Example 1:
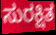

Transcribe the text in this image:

ಸುರಕ್ಷಿತ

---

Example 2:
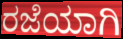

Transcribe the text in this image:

ರಜೆಯಾಗಿ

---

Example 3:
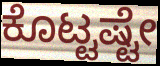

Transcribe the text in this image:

ಕೊಟ್ಟಷ್ಟೇ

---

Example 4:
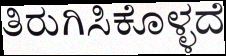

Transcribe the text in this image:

ತಿರುಗಿಸಿಕೊಳ್ಳದೆ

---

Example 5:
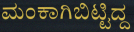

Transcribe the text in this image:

ಮಂಕಾಗಿಬಿಟ್ಟಿದ್ದ